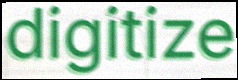
digitize